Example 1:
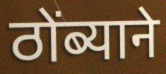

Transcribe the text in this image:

ठोंब्याने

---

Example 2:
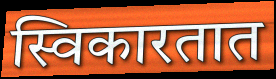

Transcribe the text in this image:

स्विकारतात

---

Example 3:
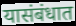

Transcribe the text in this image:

यासंबंधात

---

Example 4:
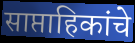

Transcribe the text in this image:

साप्ताहिकांचे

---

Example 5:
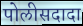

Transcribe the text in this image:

पोलीसदादा